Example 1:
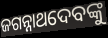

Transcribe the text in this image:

ଜଗନ୍ନାଥଦେବଙ୍କୁ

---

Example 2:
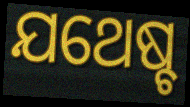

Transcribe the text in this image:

ଯଥେଷ୍ଚ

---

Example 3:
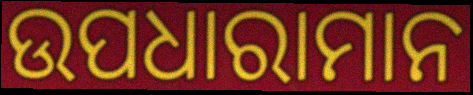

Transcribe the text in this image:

ଉପଧାରାମାନ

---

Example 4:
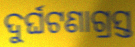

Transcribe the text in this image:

ଦୁର୍ଘଟଣାଗ୍ରସ୍ତ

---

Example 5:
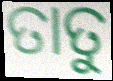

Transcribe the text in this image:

ତାତୁ